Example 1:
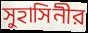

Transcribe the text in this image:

সুহাসিনীর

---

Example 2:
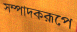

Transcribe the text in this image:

সম্পাদকরূপে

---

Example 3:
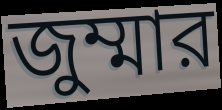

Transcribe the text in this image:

জুম্মার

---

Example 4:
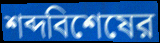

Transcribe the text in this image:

শব্দবিশেষের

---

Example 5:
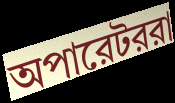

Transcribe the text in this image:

অপারেটররা